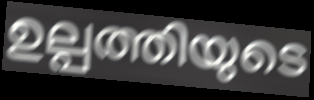
ഉല്പത്തിയുടെ